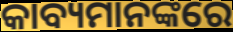
କାବ୍ୟମାନଙ୍କରେ